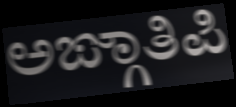
ಅಙ್ಗಾತಿಪಿ